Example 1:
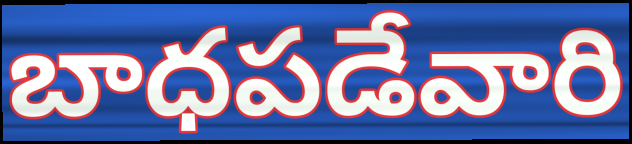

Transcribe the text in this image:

బాధపడేవారి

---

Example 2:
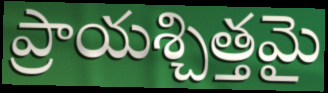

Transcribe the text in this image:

ప్రాయశ్చిత్తమై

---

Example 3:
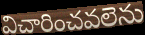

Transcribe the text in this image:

విచారించవలెను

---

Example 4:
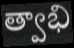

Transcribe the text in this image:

త్వాభి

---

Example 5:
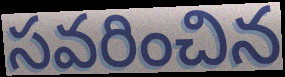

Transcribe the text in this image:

సవరించిన